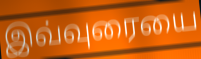
இவ்வுரையை